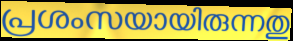
പ്രശംസയായിരുന്നതു